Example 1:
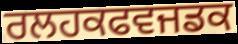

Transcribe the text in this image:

ਰਲਹਕਫਵਜਡਕ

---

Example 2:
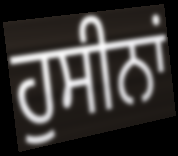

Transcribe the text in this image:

ਹੁਸੀਨਾਂ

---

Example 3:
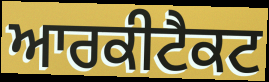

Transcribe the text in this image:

ਆਰਕੀਟੈਕਟ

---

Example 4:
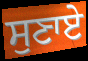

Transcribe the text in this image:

ਸੁਣਾਏ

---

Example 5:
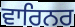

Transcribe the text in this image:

ਵਾਰਿਨਰ